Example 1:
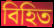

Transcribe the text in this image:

বিহিত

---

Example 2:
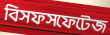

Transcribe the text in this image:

বিসফসফেটেজ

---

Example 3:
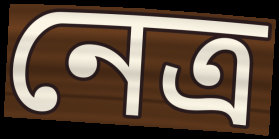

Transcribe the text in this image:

নেত্র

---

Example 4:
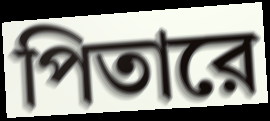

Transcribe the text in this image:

পিতারে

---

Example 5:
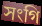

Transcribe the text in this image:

সংগি